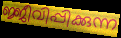
ജ്ജീവിപ്പിക്കുന്ന